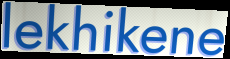
lekhikene